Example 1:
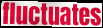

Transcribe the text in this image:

fluctuates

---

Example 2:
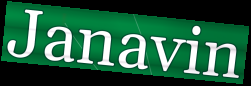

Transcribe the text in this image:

Janavin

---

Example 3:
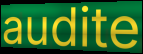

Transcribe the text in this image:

audite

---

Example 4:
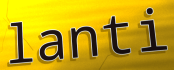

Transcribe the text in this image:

lanti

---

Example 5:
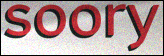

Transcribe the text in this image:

soory